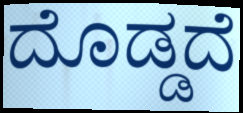
ದೊಡ್ಡದೆ